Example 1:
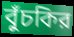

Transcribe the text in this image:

বুঁচকির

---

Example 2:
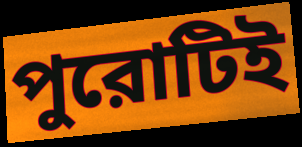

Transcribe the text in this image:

পুরোটিই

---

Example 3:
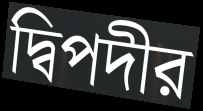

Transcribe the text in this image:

দ্বিপদীর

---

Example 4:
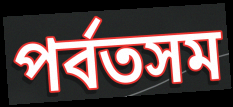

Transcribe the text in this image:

পর্বতসম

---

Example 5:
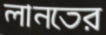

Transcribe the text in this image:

লানতের